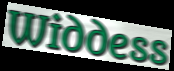
Widdess